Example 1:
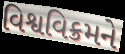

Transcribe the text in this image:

વિશ્વવિક્રમને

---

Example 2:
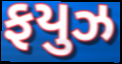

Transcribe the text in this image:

ફયુઝ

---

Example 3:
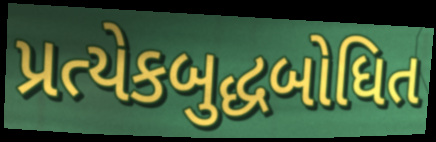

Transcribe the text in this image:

પ્રત્યેકબુદ્ધબોધિત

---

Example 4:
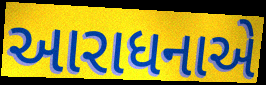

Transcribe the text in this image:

આરાધનાએ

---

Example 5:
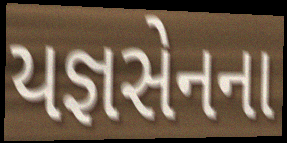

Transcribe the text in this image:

યજ્ઞસેનના